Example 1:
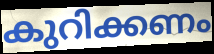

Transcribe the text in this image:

കുറിക്കണം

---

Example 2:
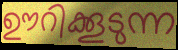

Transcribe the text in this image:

ഊറിക്കൂടുന്ന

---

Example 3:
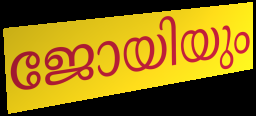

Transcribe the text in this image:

ജോയിയും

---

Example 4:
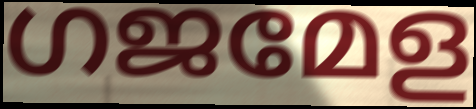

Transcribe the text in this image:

ഗജമേള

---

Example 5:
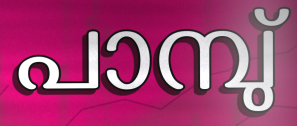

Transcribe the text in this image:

പാമ്പു്